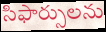
సిఫార్సులను